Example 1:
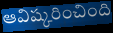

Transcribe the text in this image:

ఆవిష్కరించింది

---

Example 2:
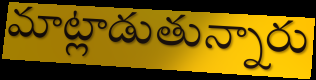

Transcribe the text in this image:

మాట్లాడుతున్నారు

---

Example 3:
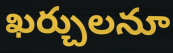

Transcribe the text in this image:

ఖర్చులనూ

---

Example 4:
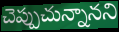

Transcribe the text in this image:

చెప్పుచున్నానని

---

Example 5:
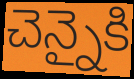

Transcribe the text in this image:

చెన్నైకి